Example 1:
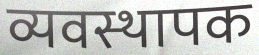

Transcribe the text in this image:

व्यवस्थापक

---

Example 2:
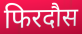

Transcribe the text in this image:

फिरदौस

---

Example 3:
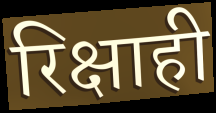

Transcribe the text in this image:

रिक्षाही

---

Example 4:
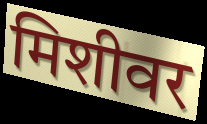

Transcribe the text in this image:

मिशीवर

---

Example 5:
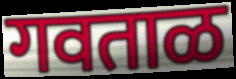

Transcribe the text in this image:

गवताळ